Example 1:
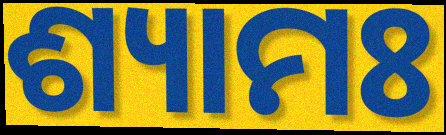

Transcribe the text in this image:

ଶ୍ୟାମଃ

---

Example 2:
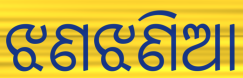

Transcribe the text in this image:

ଝଣଝଣିଆ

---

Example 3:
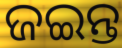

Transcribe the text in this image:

ଜଇନ୍ତ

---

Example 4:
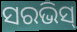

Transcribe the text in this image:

ସରଭିସ୍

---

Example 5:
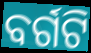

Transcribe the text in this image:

ବର୍ଗଟି